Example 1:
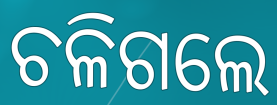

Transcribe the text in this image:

ଚଳିଗଲେ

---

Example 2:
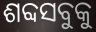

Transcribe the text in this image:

ଶବ୍ଦସବୁକୁ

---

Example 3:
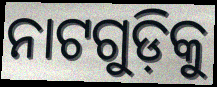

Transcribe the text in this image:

ନାଟଗୁଡ଼ିକୁ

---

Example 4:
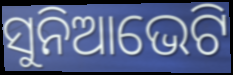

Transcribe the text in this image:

ସୁନିଆଭେଟି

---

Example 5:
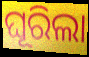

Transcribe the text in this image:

ଘୂରିଲା